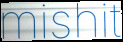
mishit